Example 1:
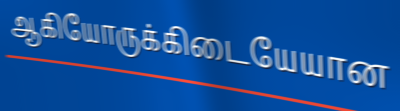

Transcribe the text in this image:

ஆகியோருக்கிடையேயான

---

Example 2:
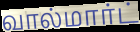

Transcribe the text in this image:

வால்மார்ட்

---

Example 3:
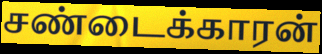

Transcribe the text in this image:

சண்டைக்காரன்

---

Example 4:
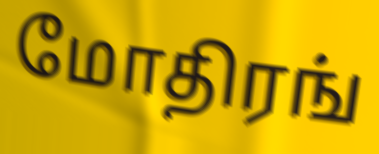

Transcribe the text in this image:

மோதிரங்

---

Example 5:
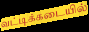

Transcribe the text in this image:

வட்டிக்கடையில்